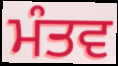
ਮੰਤਵ